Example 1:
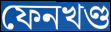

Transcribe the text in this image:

ফেনখণ্ড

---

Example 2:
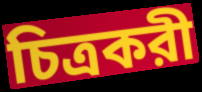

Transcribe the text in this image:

চিত্রকরী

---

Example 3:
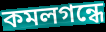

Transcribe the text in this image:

কমলগন্ধে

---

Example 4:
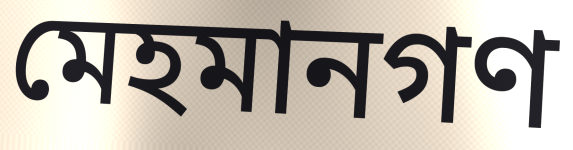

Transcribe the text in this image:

মেহমানগণ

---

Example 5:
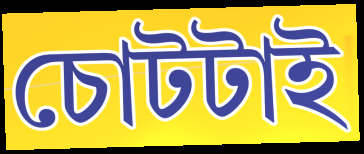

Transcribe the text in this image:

চোটটাই